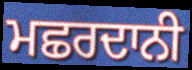
ਮਛਰਦਾਨੀ